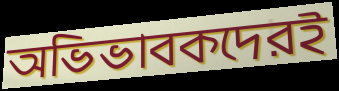
অভিভাবকদেরই